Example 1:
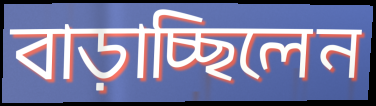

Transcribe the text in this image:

বাড়াচ্ছিলেন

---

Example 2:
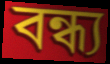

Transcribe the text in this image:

বন্ধ্য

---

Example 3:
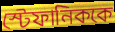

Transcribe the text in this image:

স্টেফানিককে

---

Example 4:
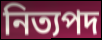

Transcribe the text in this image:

নিত্যপদ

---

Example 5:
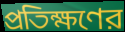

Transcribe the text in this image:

প্রতিক্ষণের